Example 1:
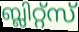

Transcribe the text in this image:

ബ്ലിറ്റ്സ്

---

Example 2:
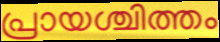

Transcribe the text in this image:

പ്രായശ്ചിത്തം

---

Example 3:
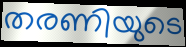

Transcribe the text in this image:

തരണിയുടെ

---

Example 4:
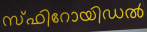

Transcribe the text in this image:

സ്ഫിറോയിഡൽ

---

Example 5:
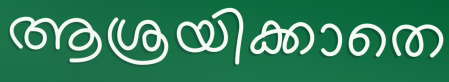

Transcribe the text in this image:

ആശ്രയിക്കാതെ